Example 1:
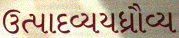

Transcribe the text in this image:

ઉત્પાદવ્યયધ્રૌવ્ય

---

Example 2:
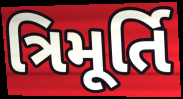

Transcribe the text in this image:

ત્રિમૂર્તિ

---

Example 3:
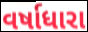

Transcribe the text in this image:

વર્ષાધારા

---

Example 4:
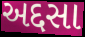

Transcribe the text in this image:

અદ્દસા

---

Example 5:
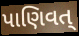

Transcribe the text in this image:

પાણિવત્